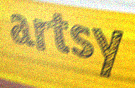
artsy